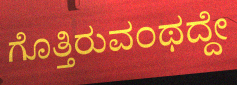
ಗೊತ್ತಿರುವಂಥದ್ದೇ